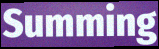
Summing